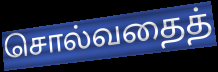
சொல்வதைத்